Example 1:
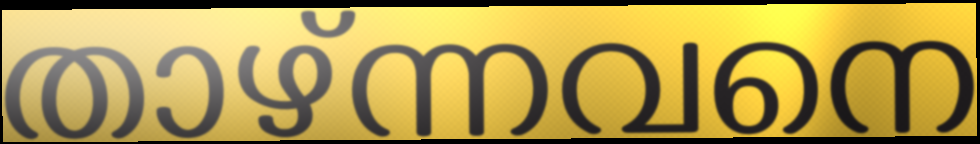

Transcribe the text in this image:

താഴ്ന്നവനെ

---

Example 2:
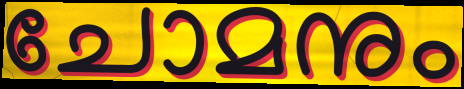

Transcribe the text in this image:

ചോമനും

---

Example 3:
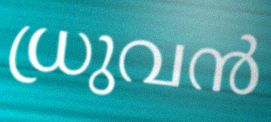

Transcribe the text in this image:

ധ്രുവൻ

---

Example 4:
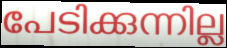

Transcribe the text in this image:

പേടിക്കുന്നില്ല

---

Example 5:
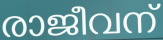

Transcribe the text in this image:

രാജീവന്